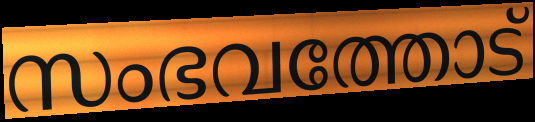
സംഭവത്തോട്